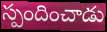
స్పందించాడు